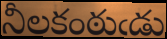
నీలకంఠుఁడు